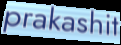
prakashit